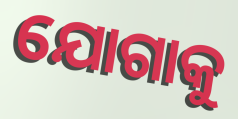
ଯୋଗାକୁ